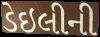
ડેઇલીની